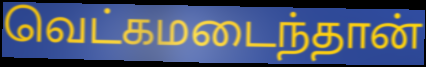
வெட்கமடைந்தான்